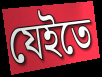
যেইতে